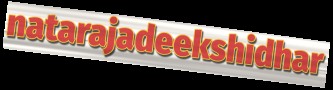
natarajadeekshidhar